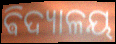
ଵିଦ୍ୟାଳୟ